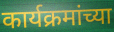
कार्यक्रमांच्या